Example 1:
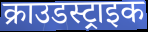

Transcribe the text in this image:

क्राउडस्ट्राइक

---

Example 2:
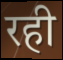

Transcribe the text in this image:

रही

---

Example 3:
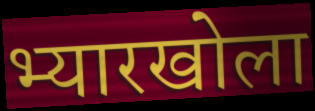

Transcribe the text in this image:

भ्यारखोला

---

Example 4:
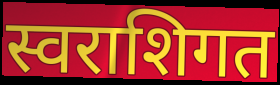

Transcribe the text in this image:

स्वराशिगत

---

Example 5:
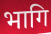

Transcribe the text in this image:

भागि